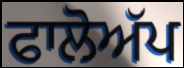
ਫਾਲੋਅੱਪ